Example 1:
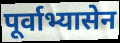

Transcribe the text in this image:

पूर्वाभ्यासेन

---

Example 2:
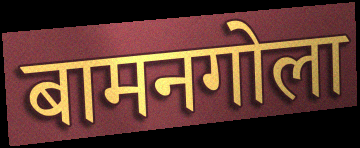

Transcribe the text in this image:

बामनगोला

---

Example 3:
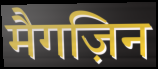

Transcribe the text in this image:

मैगज़िन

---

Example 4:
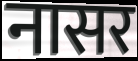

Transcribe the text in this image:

नासर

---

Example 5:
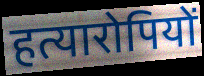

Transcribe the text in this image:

हत्यारोपियों